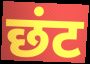
छंट